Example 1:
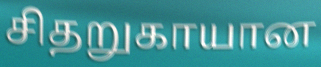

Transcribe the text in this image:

சிதறுகாயான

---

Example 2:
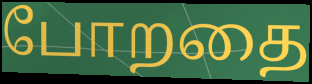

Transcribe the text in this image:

போறதை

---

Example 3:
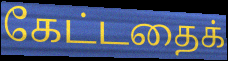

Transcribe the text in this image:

கேட்டதைக்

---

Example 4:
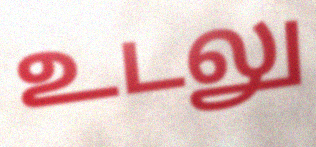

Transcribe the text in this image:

உடலு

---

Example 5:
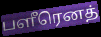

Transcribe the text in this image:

பளீரெனத்